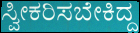
ಸ್ವೀಕರಿಸಬೇಕಿದ್ದ